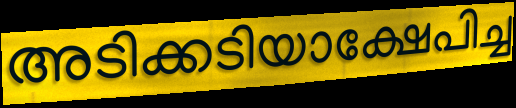
അടിക്കടിയാക്ഷേപിച്ച